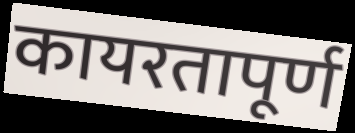
कायरतापूर्ण